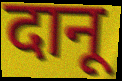
दानू